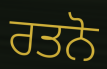
ਰਤਨੋ